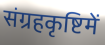
संग्रहकृष्टिमें